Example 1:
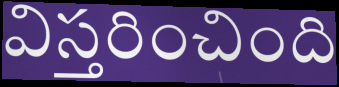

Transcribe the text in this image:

విస్తరించింది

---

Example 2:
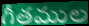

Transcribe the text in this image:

గీతముల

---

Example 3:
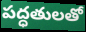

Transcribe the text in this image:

పద్ధతులతో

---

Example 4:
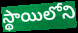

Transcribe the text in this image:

స్థాయిలోని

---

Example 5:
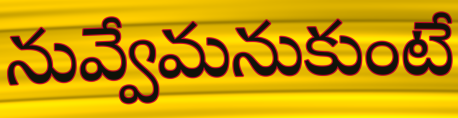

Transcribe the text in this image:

నువ్వేమనుకుంటే